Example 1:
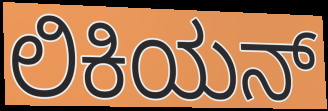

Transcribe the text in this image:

ಲಿಕಿಯನ್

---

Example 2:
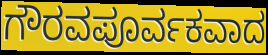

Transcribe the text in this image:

ಗೌರವಪೂರ್ವಕವಾದ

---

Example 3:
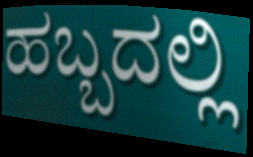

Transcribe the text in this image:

ಹಬ್ಬದಲ್ಲಿ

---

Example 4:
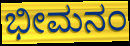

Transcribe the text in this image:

ಭೀಮನಂ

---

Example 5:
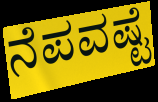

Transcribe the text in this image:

ನೆಪವಷ್ಟೆ